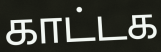
காட்டக